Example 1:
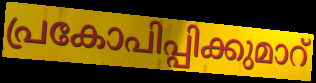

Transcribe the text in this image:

പ്രകോപിപ്പിക്കുമാറ്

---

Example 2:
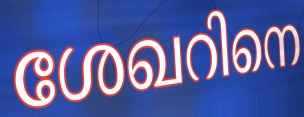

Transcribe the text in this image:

ശേഖറിനെ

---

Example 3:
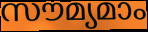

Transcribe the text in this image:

സൗമ്യമാം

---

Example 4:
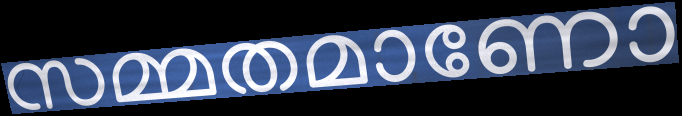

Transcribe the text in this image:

സമ്മതമാണോ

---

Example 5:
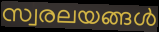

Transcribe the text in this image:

സ്വരലയങ്ങൾ